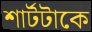
শার্টটাকে